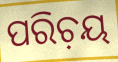
ପରିଚ଼ୟ